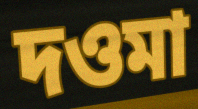
দওমা